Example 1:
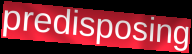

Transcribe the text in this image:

predisposing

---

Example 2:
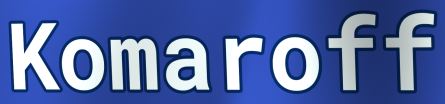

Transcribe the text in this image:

Komaroff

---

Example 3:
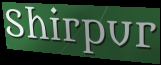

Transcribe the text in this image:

Shirpur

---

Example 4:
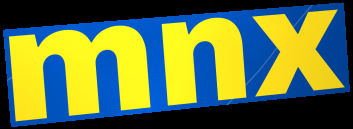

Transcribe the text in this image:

mnx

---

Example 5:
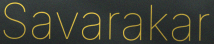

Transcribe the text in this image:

Savarakar